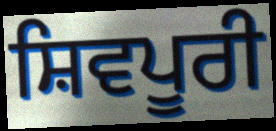
ਸ਼ਿਵਪੂਰੀ